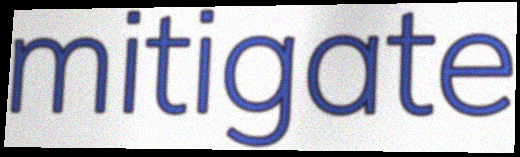
mitigate